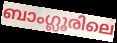
ബാംഗ്ലൂരിലെ